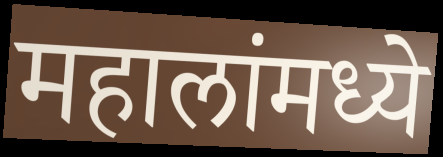
महालांमध्ये